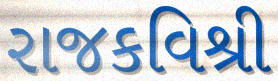
રાજકવિશ્રી